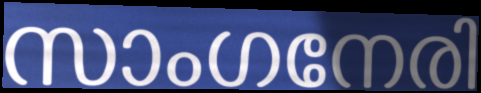
സാംഗനേരി